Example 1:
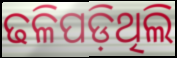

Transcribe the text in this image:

ଢଳିପଡ଼ିଥିଲି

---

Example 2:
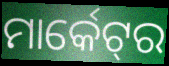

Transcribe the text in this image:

ମାର୍କେଟ୍‌ର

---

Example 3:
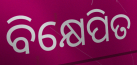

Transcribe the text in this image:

ବିକ୍ଷେପିତ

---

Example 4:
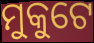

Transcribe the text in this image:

ମୁକୁଟେ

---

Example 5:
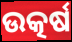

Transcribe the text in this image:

ଉତ୍କର୍ଷ